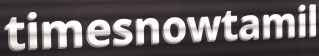
timesnowtamil